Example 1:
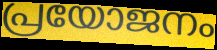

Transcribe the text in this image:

പ്രയോജനം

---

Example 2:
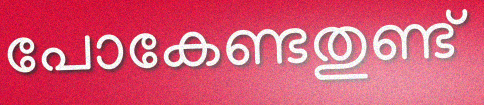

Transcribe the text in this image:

പോകേണ്ടതുണ്ട്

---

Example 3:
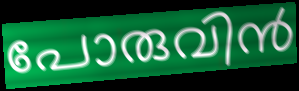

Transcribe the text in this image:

പോരുവിൻ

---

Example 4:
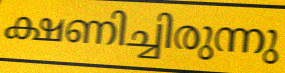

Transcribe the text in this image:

ക്ഷണിച്ചിരുന്നു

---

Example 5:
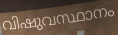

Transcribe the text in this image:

വിഷുവസ്ഥാനം